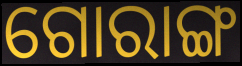
ଗୋରାଙ୍ଗ